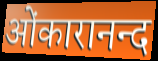
ओंकारानन्द